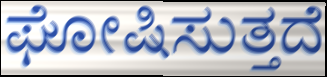
ಘೋಷಿಸುತ್ತದೆ